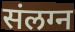
संलग्न